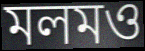
মলমও